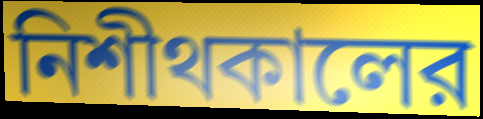
নিশীথকালের